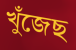
খুঁজেছ